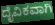
ದೈವಿಕವಾಗಿ